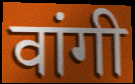
वांगी